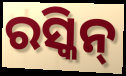
ରସ୍କିନ୍